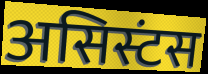
असिस्टंस